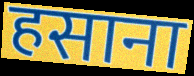
हसाना